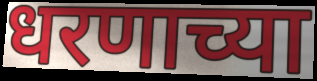
धरणाच्या